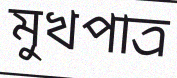
মুখপাত্র